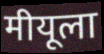
मीयूला